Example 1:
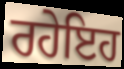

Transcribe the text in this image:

ਰਹੇਇਹ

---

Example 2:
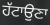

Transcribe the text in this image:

ਹੱਟਾਉਣਾ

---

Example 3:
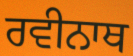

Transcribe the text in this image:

ਰਵੀਨਾਥ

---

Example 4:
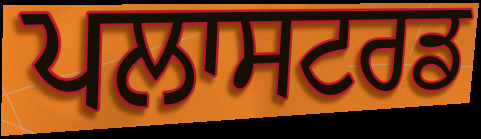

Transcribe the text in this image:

ਪਲਾਸਟਰਡ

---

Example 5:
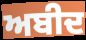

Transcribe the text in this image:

ਅਬੀਦ